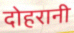
दोहरानी